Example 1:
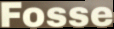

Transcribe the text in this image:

Fosse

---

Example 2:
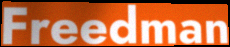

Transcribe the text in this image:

Freedman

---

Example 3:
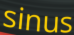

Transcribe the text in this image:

sinus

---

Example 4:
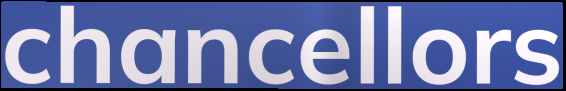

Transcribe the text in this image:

chancellors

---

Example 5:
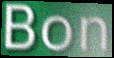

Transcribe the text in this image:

Bon